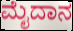
ಮೈದಾನ